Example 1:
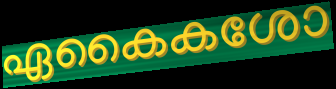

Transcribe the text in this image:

ഏകൈകശോ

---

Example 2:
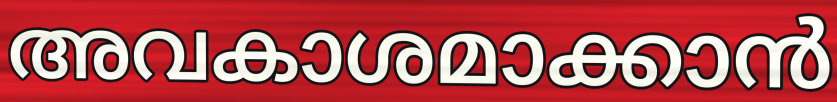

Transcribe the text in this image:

അവകാശമാക്കാൻ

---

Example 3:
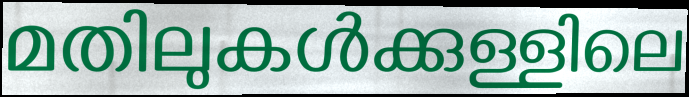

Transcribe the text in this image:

മതിലുകൾക്കുള്ളിലെ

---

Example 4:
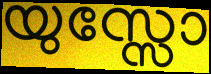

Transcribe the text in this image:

യുസ്സോ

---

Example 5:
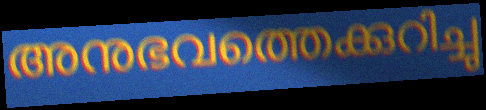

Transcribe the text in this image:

അനുഭവത്തെക്കുറിച്ചു